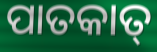
ପାତକାତ୍